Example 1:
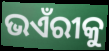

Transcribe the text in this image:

ଭଏଁରୀକୁ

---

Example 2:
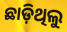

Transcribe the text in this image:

ଛାଡ଼ିଥିଲୁ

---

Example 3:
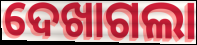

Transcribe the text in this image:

ଦେଖାଗଲା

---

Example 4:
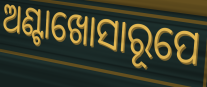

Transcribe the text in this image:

ଅଣ୍ଟାଖୋସାରୂପେ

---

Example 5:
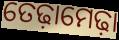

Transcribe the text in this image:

ତେଢ଼ାମେଢ଼ା